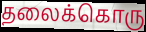
தலைக்கொரு